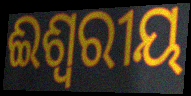
ଈଶ୍ବରୀୟ